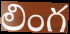
లింగ